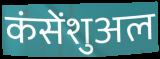
कंसेंशुअल